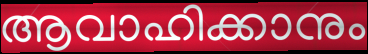
ആവാഹിക്കാനും